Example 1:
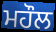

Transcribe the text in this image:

ਮਹੌਲ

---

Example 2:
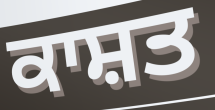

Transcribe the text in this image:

ਕਾਸ਼ਤ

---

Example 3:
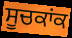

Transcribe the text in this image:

ਸੂਚਕਾਂਕ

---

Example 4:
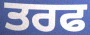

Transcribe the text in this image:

ਤਰਫ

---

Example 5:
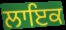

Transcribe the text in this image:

ਲਾਇਕ